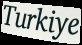
Turkiye